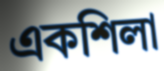
একশিলা